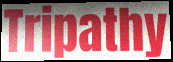
Tripathy